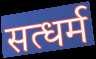
सत्धर्म